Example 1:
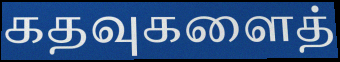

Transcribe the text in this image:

கதவுகளைத்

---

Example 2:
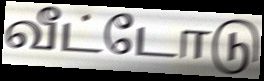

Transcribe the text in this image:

வீட்டோடு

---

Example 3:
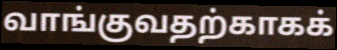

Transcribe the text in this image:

வாங்குவதற்காகக்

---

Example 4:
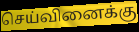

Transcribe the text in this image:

செய்வினைக்கு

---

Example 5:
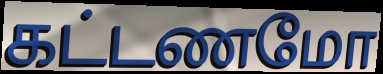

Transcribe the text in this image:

கட்டணமோ